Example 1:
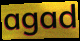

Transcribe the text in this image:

agad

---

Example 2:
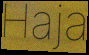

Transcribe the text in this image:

Haja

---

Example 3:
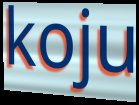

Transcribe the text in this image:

koju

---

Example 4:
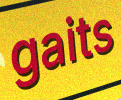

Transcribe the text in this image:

gaits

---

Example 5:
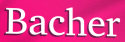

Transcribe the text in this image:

Bacher